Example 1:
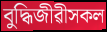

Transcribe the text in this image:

বুদ্ধিজীৱীসকল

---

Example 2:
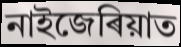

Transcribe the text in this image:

নাইজেৰিয়াত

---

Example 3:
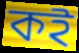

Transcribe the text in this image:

কই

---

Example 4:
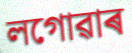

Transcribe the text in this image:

লগোৱাৰ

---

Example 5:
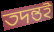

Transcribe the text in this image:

তদন্তই